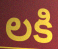
లకి